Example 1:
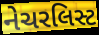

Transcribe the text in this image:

નેચરલિસ્ટ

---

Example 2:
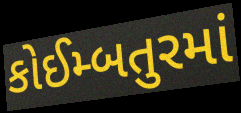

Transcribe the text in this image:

કોઈમ્બતુરમાં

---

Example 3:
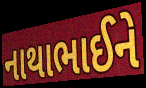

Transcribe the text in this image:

નાથાભાઈને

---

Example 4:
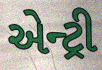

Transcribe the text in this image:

એન્‍ટ્રી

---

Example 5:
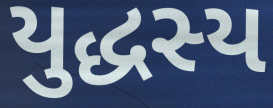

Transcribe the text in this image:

યુદ્ધસ્ય